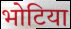
भोटिया